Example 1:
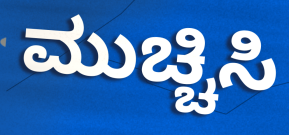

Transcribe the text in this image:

ಮುಚ್ಚಿಸಿ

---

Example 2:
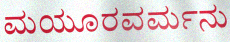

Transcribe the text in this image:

ಮಯೂರವರ್ಮನು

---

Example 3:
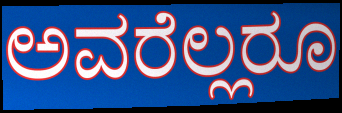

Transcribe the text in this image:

ಅವರೆಲ್ಲರೂ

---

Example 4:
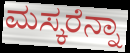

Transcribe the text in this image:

ಮಸ್ಕರೆನ್ನಾ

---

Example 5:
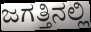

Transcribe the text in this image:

ಜಗತ್ತಿನಲ್ಲಿ